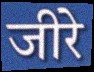
जीरे